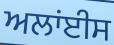
ਅਲਾਂਈਸ